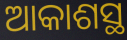
ଆକାଶସ୍ଥ